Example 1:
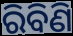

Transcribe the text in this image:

ରିବିଣି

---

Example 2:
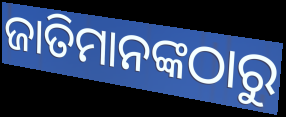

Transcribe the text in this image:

ଜାତିମାନଙ୍କଠାରୁ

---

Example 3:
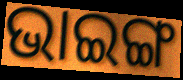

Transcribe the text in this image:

ଭାଇଙ୍ଗ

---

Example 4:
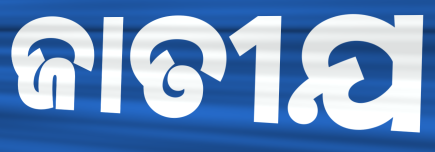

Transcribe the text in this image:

ଜାତୀଯ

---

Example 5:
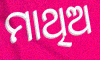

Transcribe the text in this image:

ମାଥିଅ